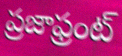
ప్రజాఫ్రంట్